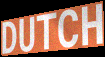
DUTCH